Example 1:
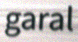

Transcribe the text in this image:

garal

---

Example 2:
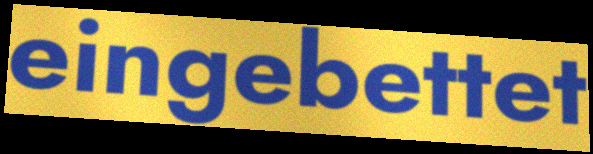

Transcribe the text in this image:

eingebettet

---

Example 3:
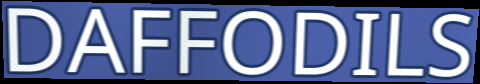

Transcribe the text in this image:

DAFFODILS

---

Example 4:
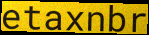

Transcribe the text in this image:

etaxnbr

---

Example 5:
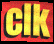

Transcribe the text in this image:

clk